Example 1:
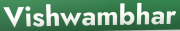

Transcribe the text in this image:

Vishwambhar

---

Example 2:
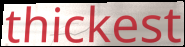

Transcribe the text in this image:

thickest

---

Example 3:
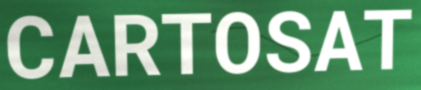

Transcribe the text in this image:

CARTOSAT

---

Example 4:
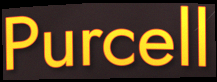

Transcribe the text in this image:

Purcell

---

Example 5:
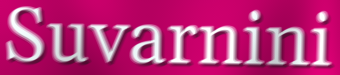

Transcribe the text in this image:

Suvarnini